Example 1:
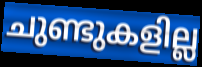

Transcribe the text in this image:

ചുണ്ടുകളില്ല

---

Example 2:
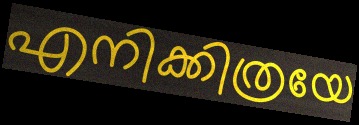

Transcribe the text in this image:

എനിക്കിത്രയേ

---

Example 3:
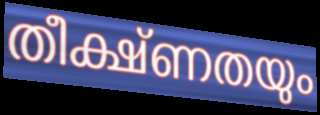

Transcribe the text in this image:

തീക്ഷ്‌ണതയും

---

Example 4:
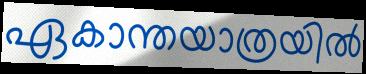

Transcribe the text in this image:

ഏകാന്തയാത്രയിൽ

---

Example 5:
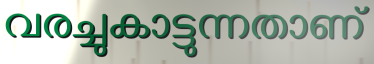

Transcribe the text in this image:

വരച്ചുകാട്ടുന്നതാണ്